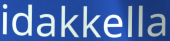
idakkella